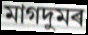
মাগদুমৰ